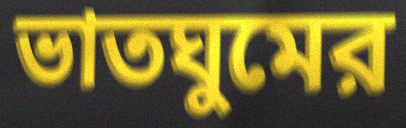
ভাতঘুমের